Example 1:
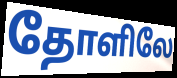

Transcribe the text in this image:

தோளிலே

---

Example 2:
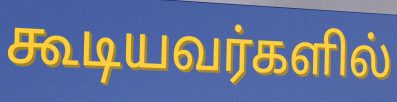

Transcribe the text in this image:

கூடியவர்களில்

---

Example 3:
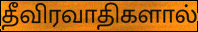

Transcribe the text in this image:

தீவிரவாதிகளால்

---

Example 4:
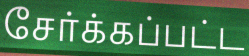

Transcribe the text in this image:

சேர்க்கப்பட்ட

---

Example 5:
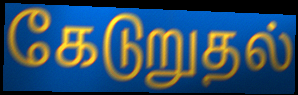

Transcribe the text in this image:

கேடுறுதல்